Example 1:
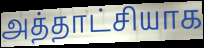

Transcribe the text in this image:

அத்தாட்சியாக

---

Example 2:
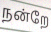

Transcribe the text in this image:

நன்றே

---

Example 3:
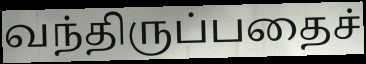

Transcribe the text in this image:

வந்திருப்பதைச்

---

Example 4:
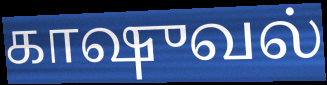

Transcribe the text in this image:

காஷுவல்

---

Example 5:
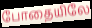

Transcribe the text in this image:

போதையிலே